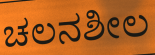
ಚಲನಶೀಲ